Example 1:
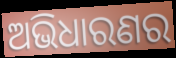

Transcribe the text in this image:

ଅଭିଧାରଣର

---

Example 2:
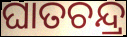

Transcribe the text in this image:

ଘାତଚନ୍ଦ୍ର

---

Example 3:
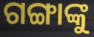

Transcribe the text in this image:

ଗଙ୍ଗାଙ୍କୁ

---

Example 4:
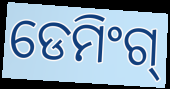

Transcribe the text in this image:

ଡେମିଂଗ୍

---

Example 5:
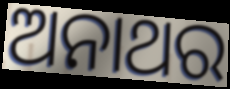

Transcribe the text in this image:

ଅନାଥର